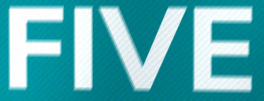
FIVE